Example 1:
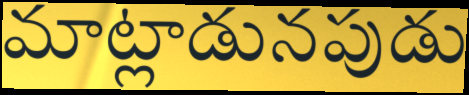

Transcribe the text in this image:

మాట్లాడునపుడు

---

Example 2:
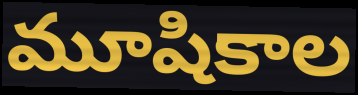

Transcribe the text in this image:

మూషికాల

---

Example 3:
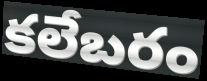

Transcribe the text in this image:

కలేబరం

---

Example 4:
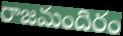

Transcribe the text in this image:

రాజమందిరం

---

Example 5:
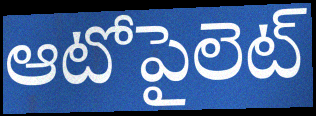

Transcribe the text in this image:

ఆటోపైలెట్